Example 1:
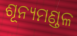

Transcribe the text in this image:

ଶୂନ୍ୟମଣ୍ଡଳ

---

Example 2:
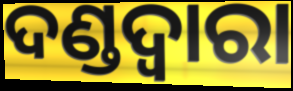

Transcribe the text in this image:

ଦଣ୍ଡଦ୍ବାରା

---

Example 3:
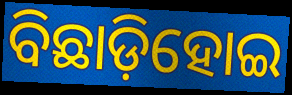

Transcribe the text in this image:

ବିଛାଡ଼ିହୋଇ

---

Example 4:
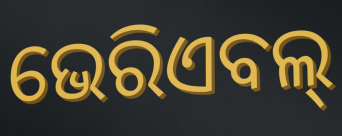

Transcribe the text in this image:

ଭେରିଏବଲ୍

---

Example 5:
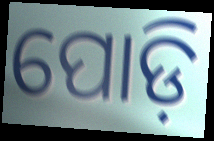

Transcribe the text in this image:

ପୋଡ଼ି